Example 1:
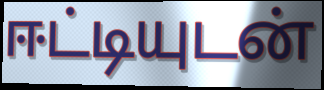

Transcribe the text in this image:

ஈட்டியுடன்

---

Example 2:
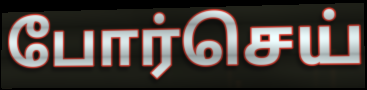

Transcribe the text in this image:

போர்செய்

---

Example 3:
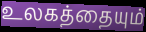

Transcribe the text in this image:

உலகத்தையும்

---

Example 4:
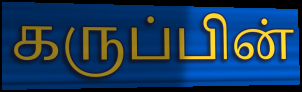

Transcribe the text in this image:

கருப்பின்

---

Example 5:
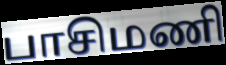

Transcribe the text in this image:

பாசிமணி